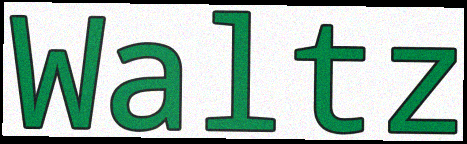
Waltz